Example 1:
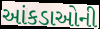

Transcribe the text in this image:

આંકડાઓની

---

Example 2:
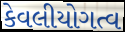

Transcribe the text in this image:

કેવલીયોગત્વ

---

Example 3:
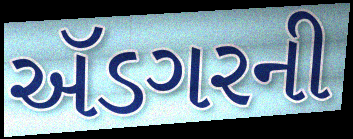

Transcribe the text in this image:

ઍડગરની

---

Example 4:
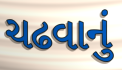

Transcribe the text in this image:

ચઢવાનું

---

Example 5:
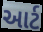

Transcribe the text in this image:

આર્ટ